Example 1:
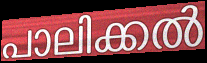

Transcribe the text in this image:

പാലിക്കൽ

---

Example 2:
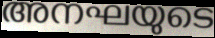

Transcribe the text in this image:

അനഘയുടെ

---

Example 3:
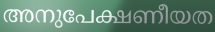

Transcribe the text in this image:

അനുപേക്ഷണീയത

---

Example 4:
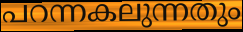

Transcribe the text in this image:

പറന്നകലുന്നതും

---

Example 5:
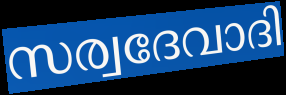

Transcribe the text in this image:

സര്വദേവാദി